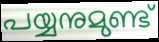
പയ്യനുമുണ്ട്